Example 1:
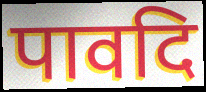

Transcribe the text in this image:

पावदि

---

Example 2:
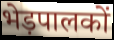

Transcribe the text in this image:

भेड़पालकों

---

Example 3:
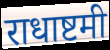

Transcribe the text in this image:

राधाष्टमी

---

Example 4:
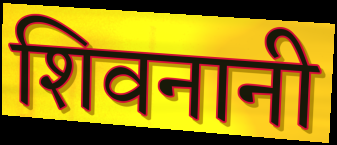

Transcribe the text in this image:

शिवनानी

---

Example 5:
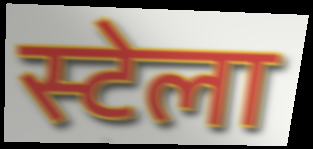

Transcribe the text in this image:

स्टेला